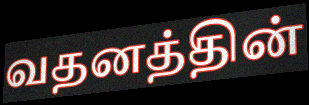
வதனத்தின்